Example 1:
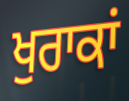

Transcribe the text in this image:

ਖੁਰਾਕਾਂ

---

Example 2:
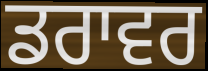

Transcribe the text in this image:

ਡਰਾਵਰ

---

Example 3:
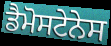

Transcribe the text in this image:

ਡੈਮੋਸਟੇਨੇਸ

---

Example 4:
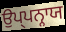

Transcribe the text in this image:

ਉਪ੍ਪਨ੍ਨਾਯ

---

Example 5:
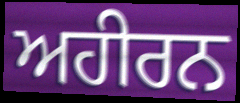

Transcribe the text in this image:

ਅਹੀਰਨ